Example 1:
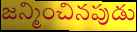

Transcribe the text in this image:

జన్మించినపుడు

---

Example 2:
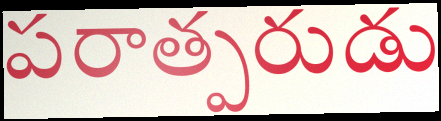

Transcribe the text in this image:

పరాత్పరుడు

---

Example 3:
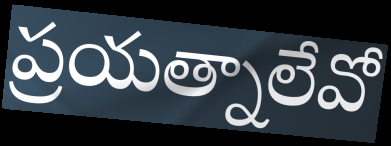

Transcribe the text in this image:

ప్రయత్నాలేవో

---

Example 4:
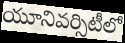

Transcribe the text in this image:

యూనివర్సిటీలో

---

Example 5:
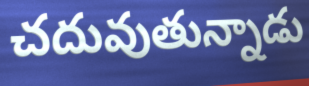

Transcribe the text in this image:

చదువుతున్నాడు